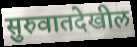
सुरुवातदेखील